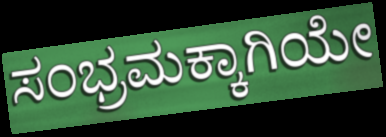
ಸಂಭ್ರಮಕ್ಕಾಗಿಯೇ